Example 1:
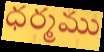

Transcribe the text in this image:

ధర్మము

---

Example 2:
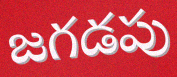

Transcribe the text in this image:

జగడపు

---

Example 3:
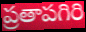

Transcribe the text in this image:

ప్రతాపగిరి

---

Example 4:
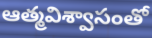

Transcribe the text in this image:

ఆత్మవిశ్వాసంతో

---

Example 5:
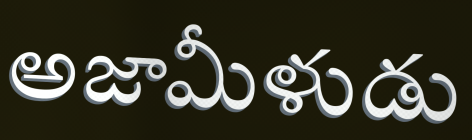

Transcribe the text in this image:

అజామీళుడు